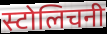
स्टोलिचनी